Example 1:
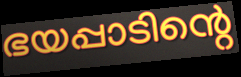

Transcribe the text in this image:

ഭയപ്പാടിന്റെ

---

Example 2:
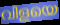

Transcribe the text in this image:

വിളയെ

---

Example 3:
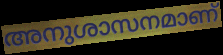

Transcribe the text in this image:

അനുശാസനമാണ്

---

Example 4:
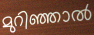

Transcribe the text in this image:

മുറിഞ്ഞാൽ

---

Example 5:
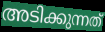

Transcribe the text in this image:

അടിക്കുന്നത്